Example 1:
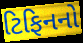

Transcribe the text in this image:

ટિફિનનો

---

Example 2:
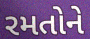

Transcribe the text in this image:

રમતોને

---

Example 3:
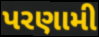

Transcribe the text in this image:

પરણામી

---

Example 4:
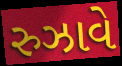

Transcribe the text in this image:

રુઝાવે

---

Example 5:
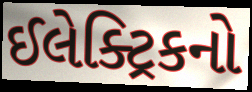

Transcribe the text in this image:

ઈલેક્ટ્રિકનો